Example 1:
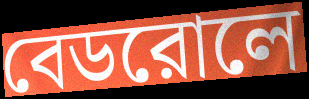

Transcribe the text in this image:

বেডরোলে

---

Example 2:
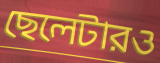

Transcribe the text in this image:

ছেলেটারও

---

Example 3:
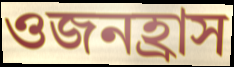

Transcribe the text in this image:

ওজনহ্রাস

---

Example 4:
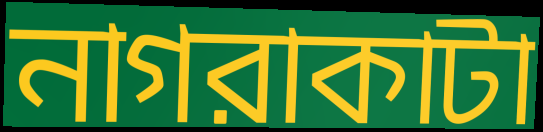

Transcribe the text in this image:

নাগরাকাটা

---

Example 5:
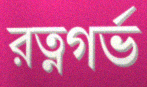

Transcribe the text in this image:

রত্নগর্ভ